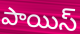
పాయిస్